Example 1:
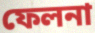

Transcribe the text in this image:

ফেলনা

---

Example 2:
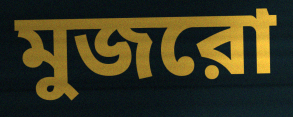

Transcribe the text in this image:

মুজরো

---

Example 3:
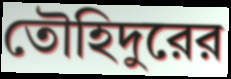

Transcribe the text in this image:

তৌহিদুরের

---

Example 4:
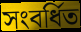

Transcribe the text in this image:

সংবর্ধিত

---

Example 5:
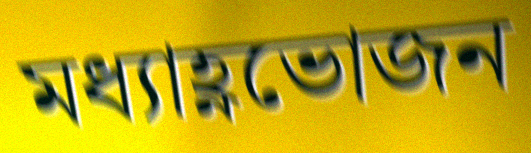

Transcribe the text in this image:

মধ্যাহ্ণভোজন